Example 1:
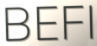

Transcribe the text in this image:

BEFI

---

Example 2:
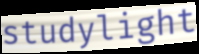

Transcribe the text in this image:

studylight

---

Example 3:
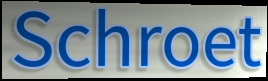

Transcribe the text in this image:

Schroet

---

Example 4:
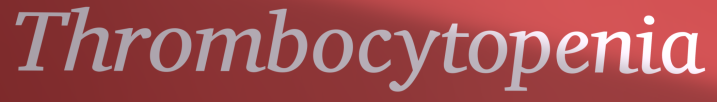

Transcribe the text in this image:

Thrombocytopenia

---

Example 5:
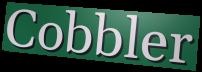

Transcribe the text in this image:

Cobbler